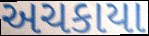
અચકાયા